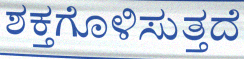
ಶಕ್ತಗೊಳಿಸುತ್ತದೆ